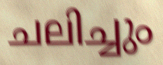
ചലിച്ചും